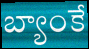
బ్యాంకే